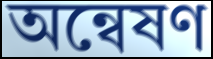
অন্বেষণ